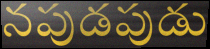
నపుడపుడు